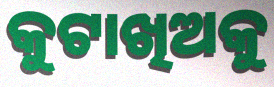
କୁଟାଖିଅକୁ